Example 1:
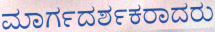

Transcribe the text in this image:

ಮಾರ್ಗದರ್ಶಕರಾದರು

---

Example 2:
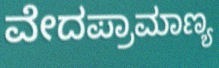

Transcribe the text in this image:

ವೇದಪ್ರಾಮಾಣ್ಯ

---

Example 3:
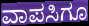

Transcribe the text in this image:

ವಾಪಸಿಗೂ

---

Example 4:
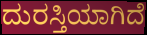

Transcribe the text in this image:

ದುರಸ್ತಿಯಾಗಿದೆ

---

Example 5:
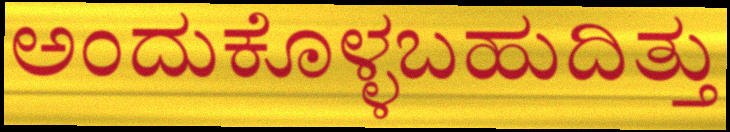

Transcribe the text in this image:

ಅಂದುಕೊಳ್ಳಬಹುದಿತ್ತು